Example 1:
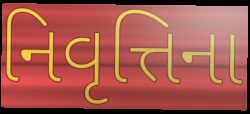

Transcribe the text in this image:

નિવૃત્તિના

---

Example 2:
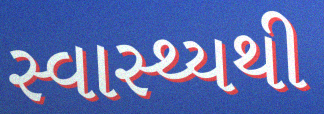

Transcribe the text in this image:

સ્વાસ્થ્યથી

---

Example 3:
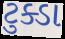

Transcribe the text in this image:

ટુક્ડા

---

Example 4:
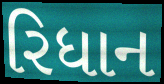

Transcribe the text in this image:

રિધાન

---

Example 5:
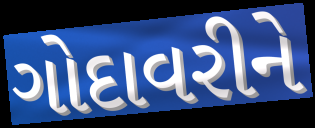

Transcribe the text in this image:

ગોદાવરીને